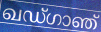
ഖഡ്ഗാഞ്